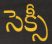
సెక్సీ